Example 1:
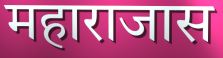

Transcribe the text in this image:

महाराजास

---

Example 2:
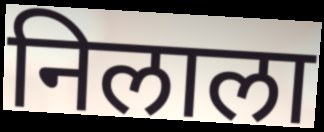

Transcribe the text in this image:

निलाला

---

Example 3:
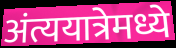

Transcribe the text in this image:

अंत्ययात्रेमध्ये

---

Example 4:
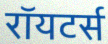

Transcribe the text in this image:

रॉयटर्स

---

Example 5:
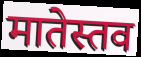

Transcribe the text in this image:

मातेस्तव